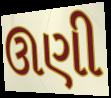
ઊણી